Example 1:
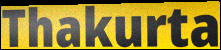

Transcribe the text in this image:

Thakurta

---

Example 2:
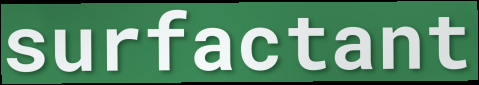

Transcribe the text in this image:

surfactant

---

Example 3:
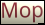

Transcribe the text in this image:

Mop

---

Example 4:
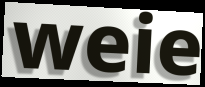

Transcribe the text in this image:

weie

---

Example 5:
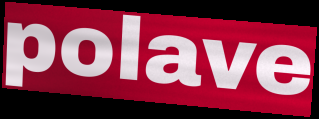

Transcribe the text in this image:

polave